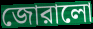
জোরালো